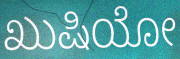
ಖುಷಿಯೋ